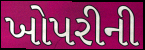
ખોપરીની